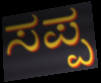
ಸಪ್ಪ